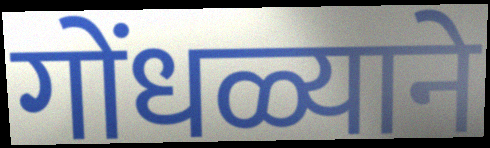
गोंधळ्याने